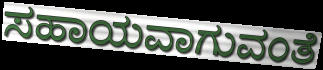
ಸಹಾಯವಾಗುವಂತೆ